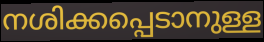
നശിക്കപ്പെടാനുള്ള